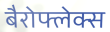
बैरोफ्लेक्स